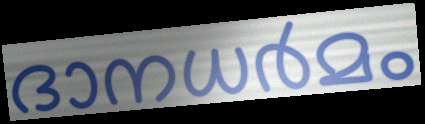
ദാനധർമം